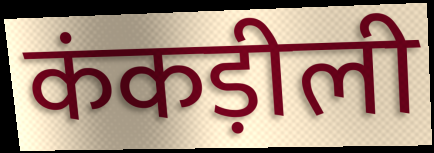
कंकड़ीली